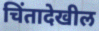
चिंतादेखील